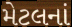
મેટલનાં